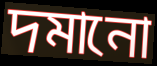
দমানো